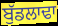
ਬੁੱਡਲਾਢਾ